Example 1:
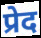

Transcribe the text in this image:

प्रेद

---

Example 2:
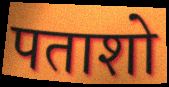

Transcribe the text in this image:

पताशो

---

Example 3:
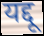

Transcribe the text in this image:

यद्दू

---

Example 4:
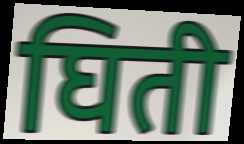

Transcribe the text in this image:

घिती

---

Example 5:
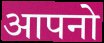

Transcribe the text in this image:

आपनो